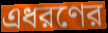
এধরণের